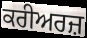
ਕਰੀਅਰਜ਼